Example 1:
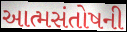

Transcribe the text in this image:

આત્મસંતોષની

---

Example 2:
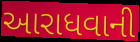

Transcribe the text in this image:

આરાધવાની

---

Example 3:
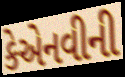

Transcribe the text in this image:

કેએનવીની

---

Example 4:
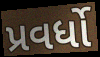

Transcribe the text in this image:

પ્રવર્ધો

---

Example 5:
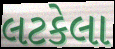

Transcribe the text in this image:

લટકેલા